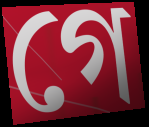
গে